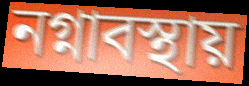
নগ্নাবস্থায়